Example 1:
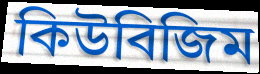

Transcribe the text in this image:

কিউবিজিম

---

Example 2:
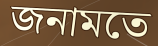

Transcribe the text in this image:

জনামতে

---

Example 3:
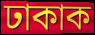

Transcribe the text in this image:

ঢাকাক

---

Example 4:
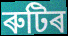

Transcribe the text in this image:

ৰুটিৰ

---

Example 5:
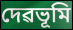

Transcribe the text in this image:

দেৱভূমি